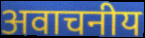
अवाचनीय